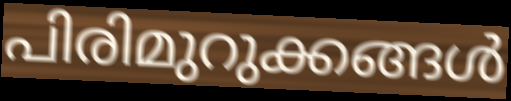
പിരിമുറുക്കങ്ങൾ